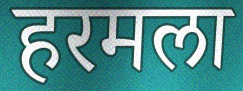
हरमला